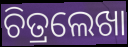
ଚିତ୍ରଲେଖା